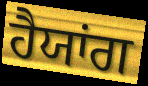
ਹੈਯਾਂਗ